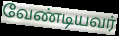
வேண்டியவர்